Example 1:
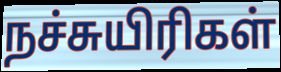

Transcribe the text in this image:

நச்சுயிரிகள்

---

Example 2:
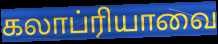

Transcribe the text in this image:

கலாப்ரியாவை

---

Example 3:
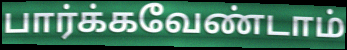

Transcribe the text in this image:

பார்க்கவேண்டாம்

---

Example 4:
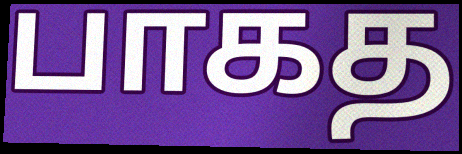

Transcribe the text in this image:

பாகத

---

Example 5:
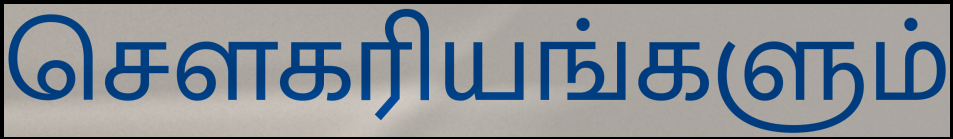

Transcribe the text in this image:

சௌகரியங்களும்